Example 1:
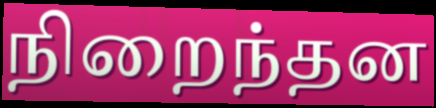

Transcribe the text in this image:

நிறைந்தன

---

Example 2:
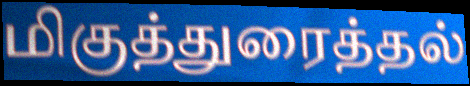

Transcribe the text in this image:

மிகுத்துரைத்தல்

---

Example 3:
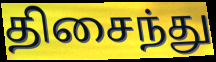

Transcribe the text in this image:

திசைந்து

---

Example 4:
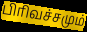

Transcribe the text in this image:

பிரிவச்சமும்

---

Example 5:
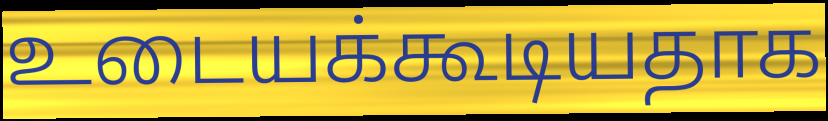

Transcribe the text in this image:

உடையக்கூடியதாக